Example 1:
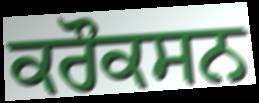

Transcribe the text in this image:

ਕਰੌਕਸਨ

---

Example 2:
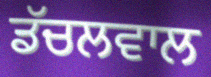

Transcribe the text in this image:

ਡੱਚਲਵਾਲ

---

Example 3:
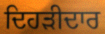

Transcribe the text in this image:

ਦਿਹੜੀਦਾਰ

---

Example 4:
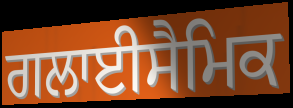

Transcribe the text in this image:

ਗਲਾਈਸੈਮਿਕ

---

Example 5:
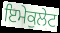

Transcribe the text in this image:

ਇਮੇਕੁਲੇਟ